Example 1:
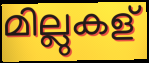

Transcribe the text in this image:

മില്ലുകള്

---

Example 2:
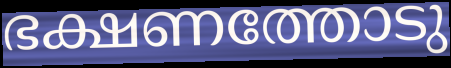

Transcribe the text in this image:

ഭക്ഷണത്തോടു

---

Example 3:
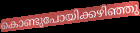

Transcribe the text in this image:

കൊണ്ടുപോയിക്കഴിഞ്ഞു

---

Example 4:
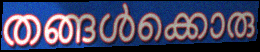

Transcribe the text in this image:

തങ്ങൾക്കൊരു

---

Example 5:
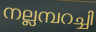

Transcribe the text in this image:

നല്ലമ്പറച്ചി